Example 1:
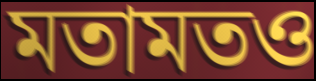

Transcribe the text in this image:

মতামতও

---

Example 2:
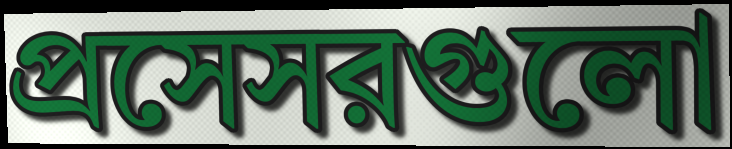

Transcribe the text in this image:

প্রসেসরগুলো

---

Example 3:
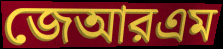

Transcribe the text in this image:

জেআরএম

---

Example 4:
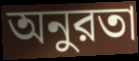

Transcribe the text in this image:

অনুরতা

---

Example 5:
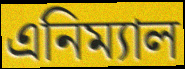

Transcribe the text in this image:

এনিম্যাল